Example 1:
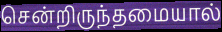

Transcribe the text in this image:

சென்றிருந்தமையால்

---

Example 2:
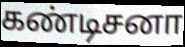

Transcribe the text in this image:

கண்டிசனா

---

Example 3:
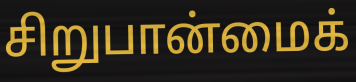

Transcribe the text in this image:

சிறுபான்மைக்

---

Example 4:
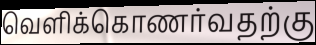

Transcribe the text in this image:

வெளிக்கொணர்வதற்கு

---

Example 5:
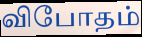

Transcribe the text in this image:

விபோதம்